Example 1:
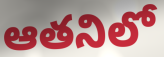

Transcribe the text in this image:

ఆతనిలో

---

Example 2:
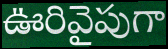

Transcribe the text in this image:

ఊరివైపుగా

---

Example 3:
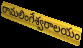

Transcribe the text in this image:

రామలింగేశ్వరాలయం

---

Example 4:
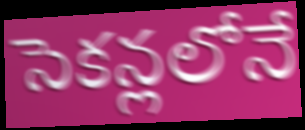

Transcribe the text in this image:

సెకన్లలోనే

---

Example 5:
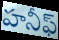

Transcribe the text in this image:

హనీఫ్